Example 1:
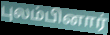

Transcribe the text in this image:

புலம்பினார்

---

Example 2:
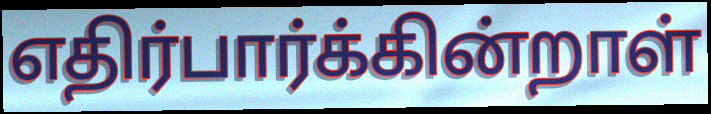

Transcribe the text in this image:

எதிர்பார்க்கின்றாள்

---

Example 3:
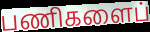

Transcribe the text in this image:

பணிகளைப்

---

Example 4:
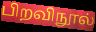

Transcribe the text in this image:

பிறவிநூல்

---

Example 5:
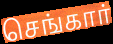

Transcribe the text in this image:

செங்கார்